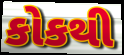
કોકથી